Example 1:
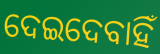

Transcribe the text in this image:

ଦେଇଦେବାହିଁ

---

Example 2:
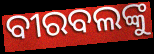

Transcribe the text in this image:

ବୀରବଲଙ୍କୁ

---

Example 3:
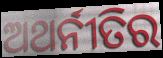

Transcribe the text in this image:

ଅଥର୍ନୀତିର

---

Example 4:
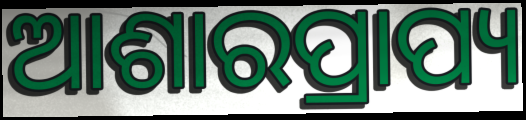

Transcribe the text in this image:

ଆଶାରପ୍ରାପ୍ୟ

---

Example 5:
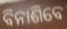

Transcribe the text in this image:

ବିନାଶିବେ